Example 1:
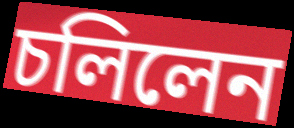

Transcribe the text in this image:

চলিলেন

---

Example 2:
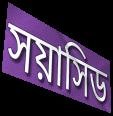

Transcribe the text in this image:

সয়াসিড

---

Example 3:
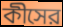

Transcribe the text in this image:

কীসের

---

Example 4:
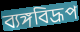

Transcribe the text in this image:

ব্যঙ্গবিদ্রূপ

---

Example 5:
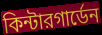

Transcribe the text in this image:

কিন্টারগার্ডেন